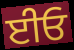
ਈਓ